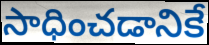
సాధించడానికే